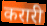
करारी